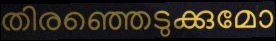
തിരഞ്ഞെടുക്കുമോ